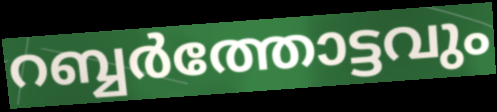
റബ്ബർത്തോട്ടവും